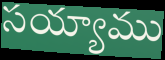
సయ్యాము